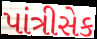
પાંત્રીસેક